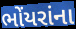
ભોંયરાંના